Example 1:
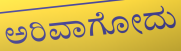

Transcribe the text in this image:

ಅರಿವಾಗೋದು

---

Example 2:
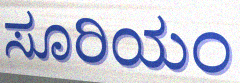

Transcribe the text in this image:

ಸೂರಿಯಂ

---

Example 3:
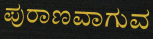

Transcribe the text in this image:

ಪುರಾಣವಾಗುವ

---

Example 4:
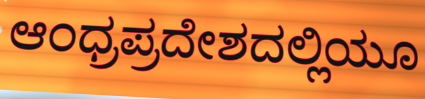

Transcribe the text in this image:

ಆಂಧ್ರಪ್ರದೇಶದಲ್ಲಿಯೂ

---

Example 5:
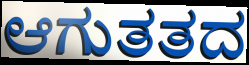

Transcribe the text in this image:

ಆಗುತತದ